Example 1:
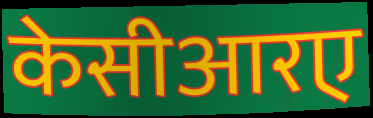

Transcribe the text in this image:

केसीआरए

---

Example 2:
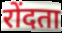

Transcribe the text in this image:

रोंदता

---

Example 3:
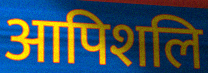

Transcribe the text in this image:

आपिशलि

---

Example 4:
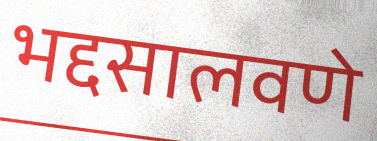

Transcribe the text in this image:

भद्दसालवणे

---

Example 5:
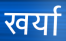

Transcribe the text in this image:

खर्या